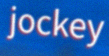
jockey